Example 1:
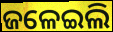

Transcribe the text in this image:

ଜଳେଇଲି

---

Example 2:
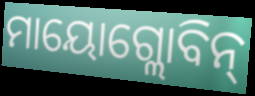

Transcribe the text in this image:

ମାୟୋଗ୍ଲୋବିନ୍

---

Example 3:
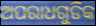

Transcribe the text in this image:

ଅପରାଧଗୁଡିକ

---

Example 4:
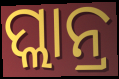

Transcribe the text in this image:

ପ୍ଲାନ୍ର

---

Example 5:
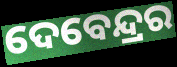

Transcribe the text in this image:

ଦେବେନ୍ଦ୍ରର